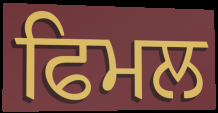
ਫਿਮਲ